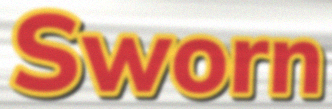
Sworn